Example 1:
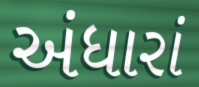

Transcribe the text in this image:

અંધારાં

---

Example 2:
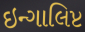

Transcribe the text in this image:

ઇન્ગાલિપ્ટ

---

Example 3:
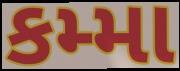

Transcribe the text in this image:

કમ્મા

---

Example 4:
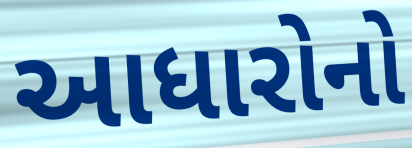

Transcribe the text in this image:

આધારોનો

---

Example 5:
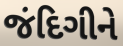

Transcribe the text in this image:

જંદિગીને